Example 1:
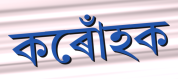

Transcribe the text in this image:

কৰোঁহক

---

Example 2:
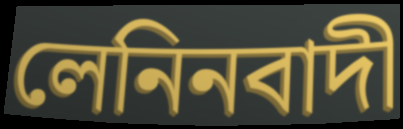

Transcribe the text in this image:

লেনিনবাদী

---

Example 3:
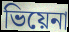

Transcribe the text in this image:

ভিয়েনা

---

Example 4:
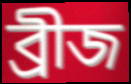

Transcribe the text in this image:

ব্ৰীজ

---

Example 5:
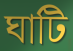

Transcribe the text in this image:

ঘাটি